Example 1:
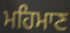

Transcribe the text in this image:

ਮਹਿਮਾਣ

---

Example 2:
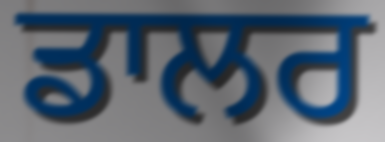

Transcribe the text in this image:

ਡਾਲਰ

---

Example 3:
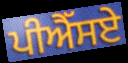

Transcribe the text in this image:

ਪੀਐੱਸਏ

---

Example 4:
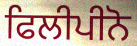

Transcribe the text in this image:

ਫਿਲੀਪੀਨੋ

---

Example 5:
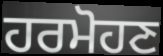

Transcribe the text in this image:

ਹਰਮੋਹਣ